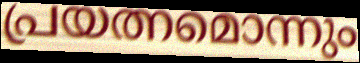
പ്രയത്നമൊന്നും